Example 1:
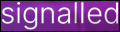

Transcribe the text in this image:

signalled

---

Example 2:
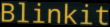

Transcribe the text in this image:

Blinkit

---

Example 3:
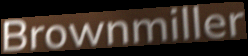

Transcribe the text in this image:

Brownmiller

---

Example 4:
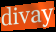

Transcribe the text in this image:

divay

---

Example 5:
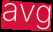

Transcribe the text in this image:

avg